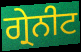
ਗ੍ਰੇਨੀਟ